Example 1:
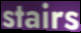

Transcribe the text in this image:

stairs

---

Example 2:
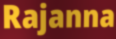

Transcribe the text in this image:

Rajanna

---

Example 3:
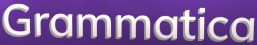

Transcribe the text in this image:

Grammatica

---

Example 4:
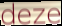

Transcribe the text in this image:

deze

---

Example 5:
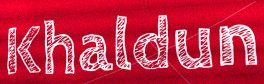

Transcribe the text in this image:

Khaldun